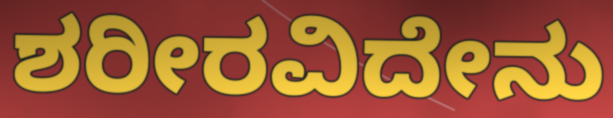
ಶರೀರವಿದೇನು